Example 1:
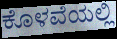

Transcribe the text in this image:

ಕೊಳವೆಯಲ್ಲಿ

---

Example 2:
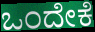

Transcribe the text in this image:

ಒಂದೇಕೆ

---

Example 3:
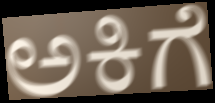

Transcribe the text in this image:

ಅಕಿಗೆ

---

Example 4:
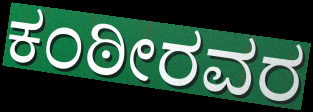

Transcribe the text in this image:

ಕಂಠೀರವರ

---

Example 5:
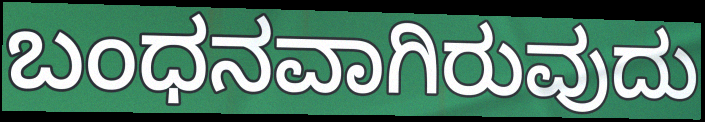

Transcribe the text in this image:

ಬಂಧನವಾಗಿರುವುದು